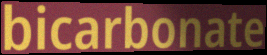
bicarbonate